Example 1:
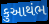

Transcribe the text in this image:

કુઆથંભ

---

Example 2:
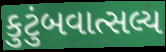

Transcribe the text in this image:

કુટુંબવાત્સલ્ય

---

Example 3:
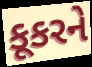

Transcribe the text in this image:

કૂકરને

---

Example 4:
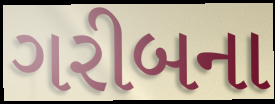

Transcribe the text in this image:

ગરીબના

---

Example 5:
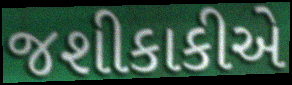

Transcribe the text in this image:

જશીકાકીએ